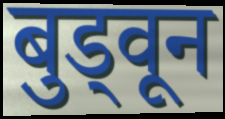
बुड्वून